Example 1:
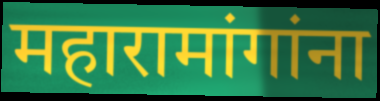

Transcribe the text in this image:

महारामांगांना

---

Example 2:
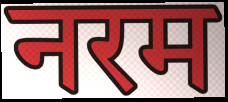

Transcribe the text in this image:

नरम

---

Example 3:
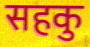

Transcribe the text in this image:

सहकु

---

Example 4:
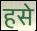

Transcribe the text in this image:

हसे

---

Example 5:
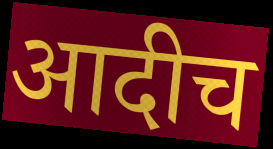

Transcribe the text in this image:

आदीच